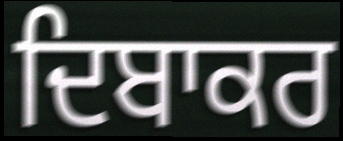
ਦਿਬਾਕਰ